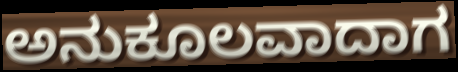
ಅನುಕೂಲವಾದಾಗ